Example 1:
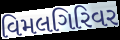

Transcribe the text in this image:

વિમલગિરિવર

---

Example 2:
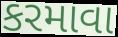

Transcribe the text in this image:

કરમાવા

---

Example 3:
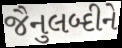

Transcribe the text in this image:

જૈનુલબ્દીને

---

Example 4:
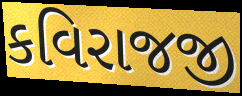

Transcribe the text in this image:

કવિરાજજી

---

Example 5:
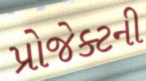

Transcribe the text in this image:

પ્રોજેક્ટની